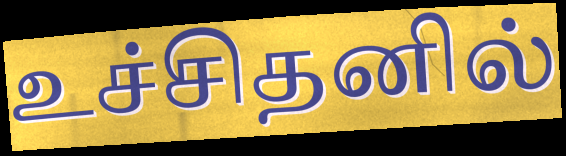
உச்சிதனில்